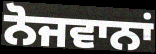
ਨੋਜਵਾਨਾਂ